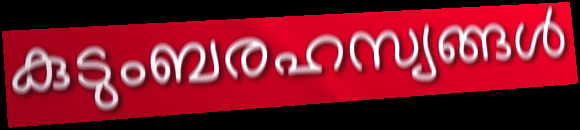
കുടുംബരഹസ്യങ്ങൾ